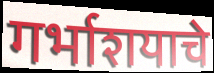
गर्भाशयाचे